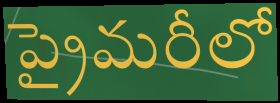
ప్రైమరీలో